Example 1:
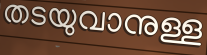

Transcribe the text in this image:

തടയുവാനുള്ള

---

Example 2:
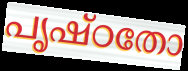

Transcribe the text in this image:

പൃഷ്ഠതോ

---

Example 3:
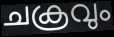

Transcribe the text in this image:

ചക്രവും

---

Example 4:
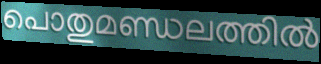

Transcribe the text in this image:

പൊതുമണ്ഡലത്തിൽ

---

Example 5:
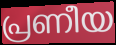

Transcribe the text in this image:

പ്രണീയ